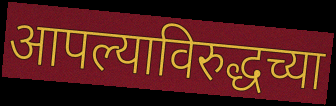
आपल्याविरुद्धच्या